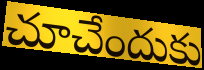
చూచేందుకు